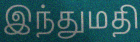
இந்துமதி